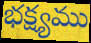
భక్ష్యము